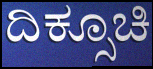
ದಿಕ್ಸೂಚಿ